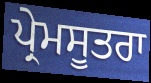
ਪ੍ਰੇਮਸੂਤਰਾ